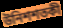
উনিশশতকী